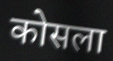
कोसला